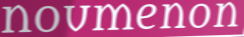
noumenon